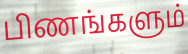
பிணங்களும்